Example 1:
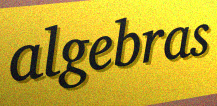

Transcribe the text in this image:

algebras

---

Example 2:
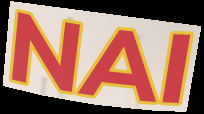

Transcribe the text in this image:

NAI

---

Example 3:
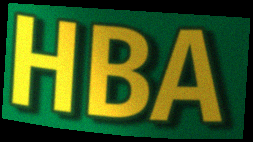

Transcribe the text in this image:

HBA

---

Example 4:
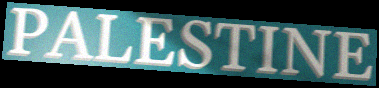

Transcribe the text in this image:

PALESTINE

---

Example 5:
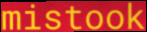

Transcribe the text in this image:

mistook